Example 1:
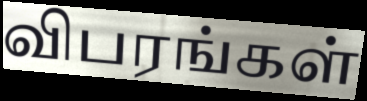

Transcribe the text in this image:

விபரங்கள்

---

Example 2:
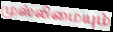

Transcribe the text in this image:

முஸ்லிமையும்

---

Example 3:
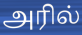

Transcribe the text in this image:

அரில்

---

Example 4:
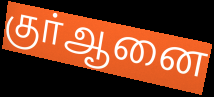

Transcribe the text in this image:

குர்ஆனை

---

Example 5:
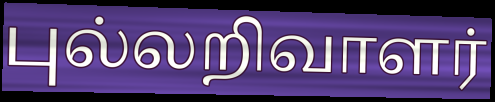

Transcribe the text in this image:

புல்லறிவாளர்